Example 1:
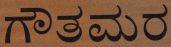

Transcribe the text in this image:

ಗೌತಮರ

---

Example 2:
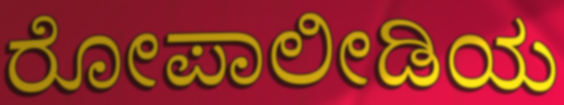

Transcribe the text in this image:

ರೋಪಾಲೀಡಿಯ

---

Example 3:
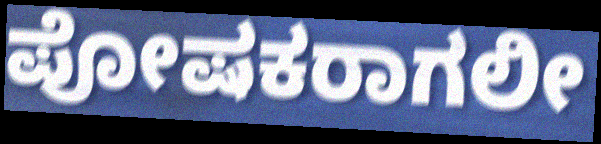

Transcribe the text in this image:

ಪೋಷಕರಾಗಲೀ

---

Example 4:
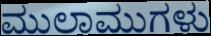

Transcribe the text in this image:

ಮುಲಾಮುಗಳು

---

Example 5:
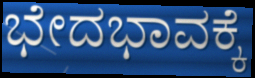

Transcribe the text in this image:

ಭೇದಭಾವಕ್ಕೆ